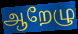
ஆறேழு